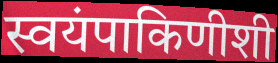
स्वयंपाकिणीशी